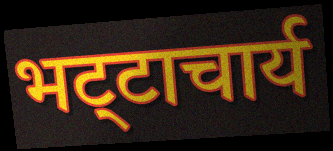
भट्‍टाचार्य